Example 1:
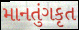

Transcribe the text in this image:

માનતુંગકૃત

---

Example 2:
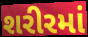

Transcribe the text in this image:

શરીરમાં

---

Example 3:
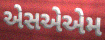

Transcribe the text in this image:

એસએએમ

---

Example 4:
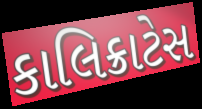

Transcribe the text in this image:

કાલિક્રાટેસ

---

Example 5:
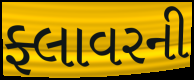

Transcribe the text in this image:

ફ્લાવરની